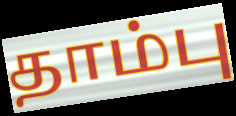
தாம்பு